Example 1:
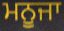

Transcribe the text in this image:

ਮਨੂਜਾ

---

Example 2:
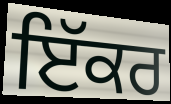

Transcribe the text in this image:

ਇੱਕਰ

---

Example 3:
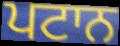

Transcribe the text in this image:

ਪਟਾਨ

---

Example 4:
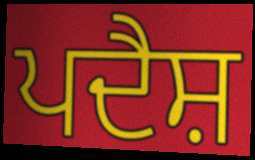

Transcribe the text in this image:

ਪਦੈਸ਼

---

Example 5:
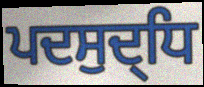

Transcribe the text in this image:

ਪਦਸੁਦ੍ਧਿ